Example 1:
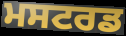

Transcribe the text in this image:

ਮਸਟਰਡ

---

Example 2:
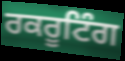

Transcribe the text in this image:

ਰਕਰੂਟਿੰਗ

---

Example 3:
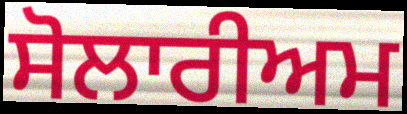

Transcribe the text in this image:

ਸੋਲਾਰੀਅਮ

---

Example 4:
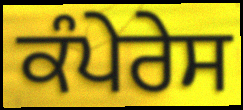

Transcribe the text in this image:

ਕੰਪੇਰੇਸ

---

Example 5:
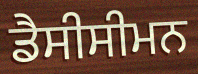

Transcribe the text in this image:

ਡੈਸੀਸੀਮਨ